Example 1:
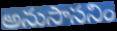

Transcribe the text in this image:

అనుసాసనిం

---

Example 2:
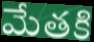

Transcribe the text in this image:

మేతకి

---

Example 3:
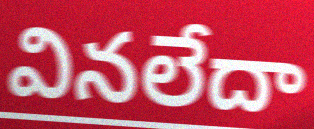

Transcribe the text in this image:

వినలేదా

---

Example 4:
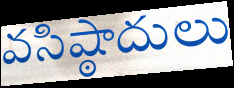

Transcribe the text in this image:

వసిష్ఠాదులు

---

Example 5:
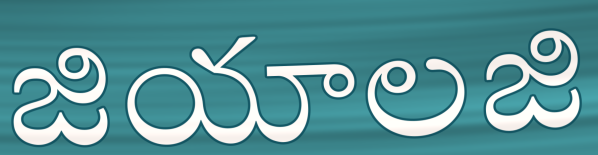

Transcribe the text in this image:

జియాలజి